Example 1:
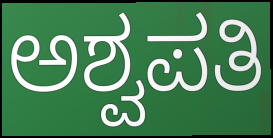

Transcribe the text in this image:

ಅಶ್ವಪತಿ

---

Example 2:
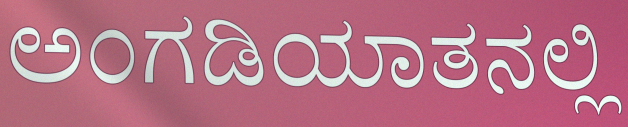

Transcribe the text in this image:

ಅಂಗಡಿಯಾತನಲ್ಲಿ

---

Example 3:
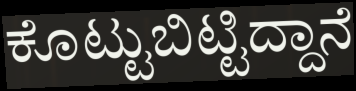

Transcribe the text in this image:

ಕೊಟ್ಟುಬಿಟ್ಟಿದ್ದಾನೆ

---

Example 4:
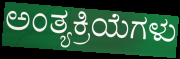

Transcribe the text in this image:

ಅಂತ್ಯಕ್ರಿಯೆಗಳು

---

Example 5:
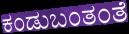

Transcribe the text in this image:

ಕಂಡುಬಂತಂತೆ